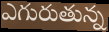
ఎగురుతున్న